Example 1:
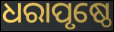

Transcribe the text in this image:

ଧରାପୃଷ୍ଠେ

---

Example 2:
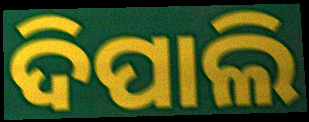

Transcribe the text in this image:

ଦିପାଲି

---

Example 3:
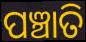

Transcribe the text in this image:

ପଞ୍ଚାତି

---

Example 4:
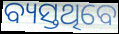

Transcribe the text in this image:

ବ୍ୟସ୍ତଥିବେ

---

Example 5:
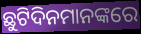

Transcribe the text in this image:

ଛୁଟିଦିନମାନଙ୍କରେ